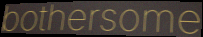
bothersome